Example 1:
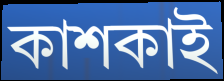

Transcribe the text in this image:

কাশকাই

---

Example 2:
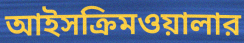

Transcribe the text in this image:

আইসক্রিমওয়ালার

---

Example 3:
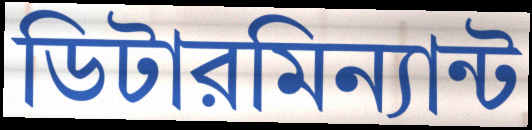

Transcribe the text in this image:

ডিটারমিন্যান্ট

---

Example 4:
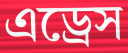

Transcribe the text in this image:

এড্রেস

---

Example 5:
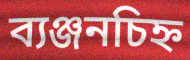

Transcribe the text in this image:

ব্যঞ্জনচিহ্ন